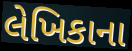
લેખિકાના